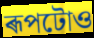
ৰূপটোও